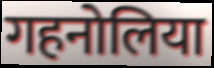
गहनोलिया